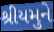
શ્રીયમુને